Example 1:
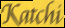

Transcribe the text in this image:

Katchi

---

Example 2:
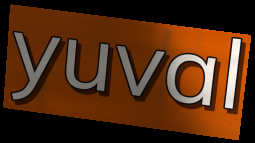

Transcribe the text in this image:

yuval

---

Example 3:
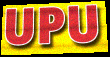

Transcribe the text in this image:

UPU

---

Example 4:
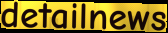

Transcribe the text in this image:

detailnews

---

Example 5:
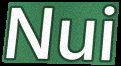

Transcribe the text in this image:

Nui